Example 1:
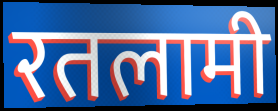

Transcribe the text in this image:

रतलामी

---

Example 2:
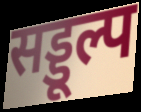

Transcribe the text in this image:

सड्डूल्प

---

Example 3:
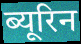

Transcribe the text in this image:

ब्यूरिन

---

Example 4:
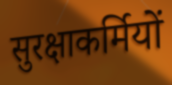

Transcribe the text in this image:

सुरक्षाकर्मियों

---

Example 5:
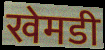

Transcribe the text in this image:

खेमडी